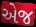
એજ